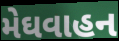
મેઘવાહન